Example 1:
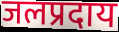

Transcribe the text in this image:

जलप्रदाय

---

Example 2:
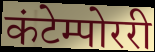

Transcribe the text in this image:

कंटेम्पोररी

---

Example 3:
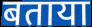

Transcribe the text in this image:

बताया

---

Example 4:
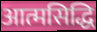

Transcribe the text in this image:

आत्मसिद्धि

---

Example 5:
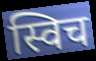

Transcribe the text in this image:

स्विच